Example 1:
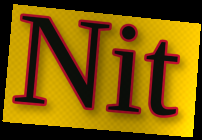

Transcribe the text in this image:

Nit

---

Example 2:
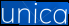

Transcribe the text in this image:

unica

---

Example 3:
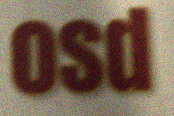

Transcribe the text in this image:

osd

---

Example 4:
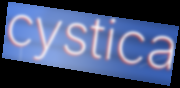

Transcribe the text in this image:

cystica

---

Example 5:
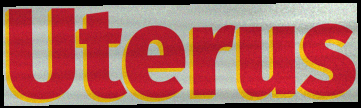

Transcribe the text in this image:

Uterus